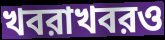
খবরাখবরও